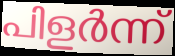
പിളർന്ന്